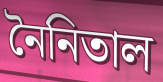
নৈনিতাল